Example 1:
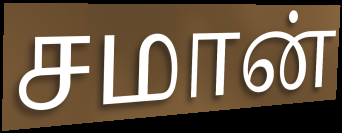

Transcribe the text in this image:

சமான்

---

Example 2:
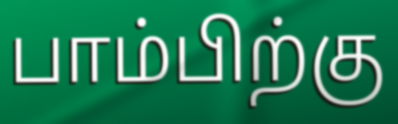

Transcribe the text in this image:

பாம்பிற்கு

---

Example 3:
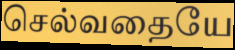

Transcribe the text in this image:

செல்வதையே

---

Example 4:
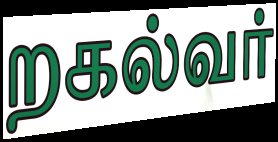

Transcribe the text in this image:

றகல்வர்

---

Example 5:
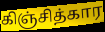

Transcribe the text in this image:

கிஞ்சித்கார